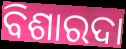
ବିଶାରଦା